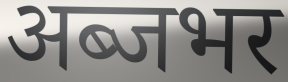
अब्जभर